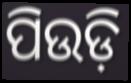
ପିଉଡ଼ି